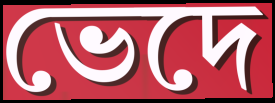
ভেদে